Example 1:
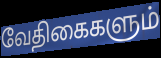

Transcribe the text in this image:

வேதிகைகளும்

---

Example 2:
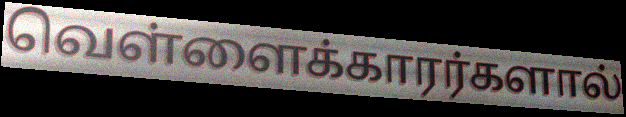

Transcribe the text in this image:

வெள்ளைக்காரர்களால்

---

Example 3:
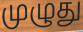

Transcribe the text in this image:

முழுது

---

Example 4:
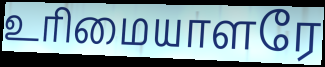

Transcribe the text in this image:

உரிமையாளரே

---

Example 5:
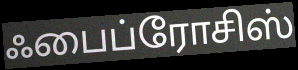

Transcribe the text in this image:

ஃபைப்ரோசிஸ்